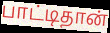
பாட்டிதான்